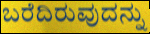
ಬರೆದಿರುವುದನ್ನು